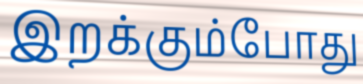
இறக்கும்போது